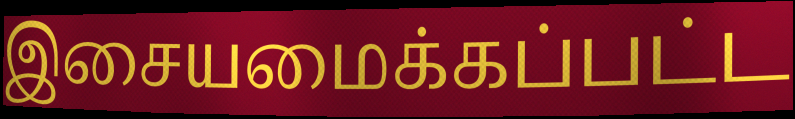
இசையமைக்கப்பட்ட